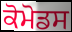
ਕੋਮੋਡਸ